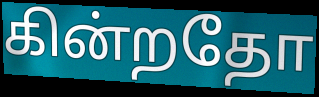
கின்றதோ